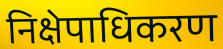
निक्षेपाधिकरण